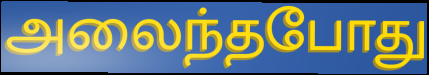
அலைந்தபோது